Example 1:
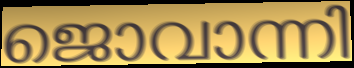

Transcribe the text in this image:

ജൊവാന്നി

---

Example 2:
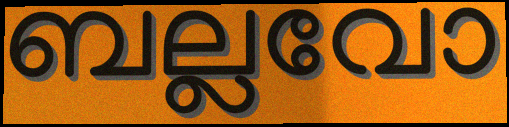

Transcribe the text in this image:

ബല്ലവോ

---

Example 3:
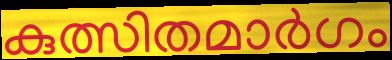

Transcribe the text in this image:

കുത്സിതമാർഗം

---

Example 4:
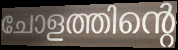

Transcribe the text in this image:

ചോളത്തിന്റെ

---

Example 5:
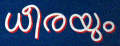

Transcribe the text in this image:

ധീരയും